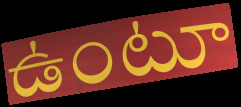
ఉంటూ